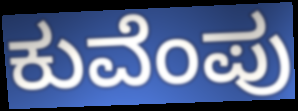
ಕುವೆಂಪು